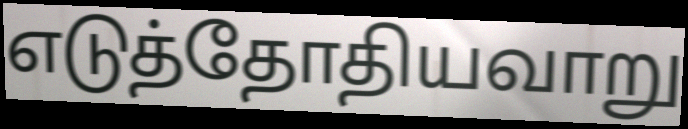
எடுத்தோதியவாறு